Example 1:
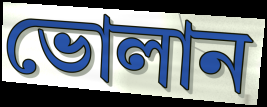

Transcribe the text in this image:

ভোলান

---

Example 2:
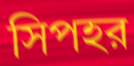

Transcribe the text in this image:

সিপহর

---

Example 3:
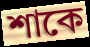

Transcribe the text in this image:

শাকে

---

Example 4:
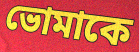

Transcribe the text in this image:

ভোমাকে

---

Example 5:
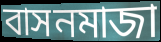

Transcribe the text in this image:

বাসনমাজা